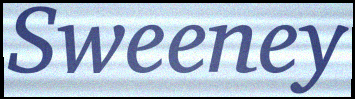
Sweeney